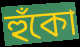
হুঁকো